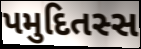
પમુદિતસ્સ